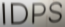
IDPS